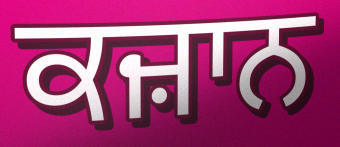
ਕਜ਼ਾਨ